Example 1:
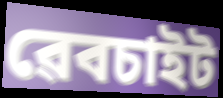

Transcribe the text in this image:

ৱেবচাইট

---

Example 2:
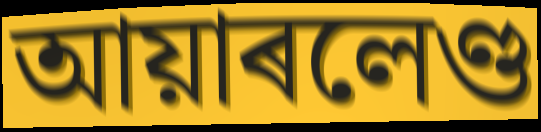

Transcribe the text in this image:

আয়াৰলেণ্ড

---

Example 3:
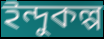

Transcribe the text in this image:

ইন্দুকল্প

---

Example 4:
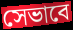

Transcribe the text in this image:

সেভাবে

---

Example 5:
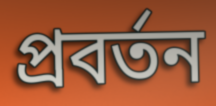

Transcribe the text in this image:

প্ৰবৰ্তন